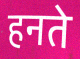
हनते